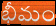
భీమం